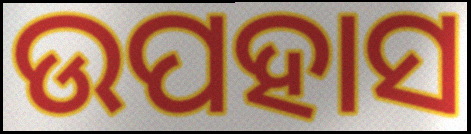
ଉପହାସ